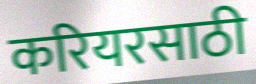
करियरसाठी